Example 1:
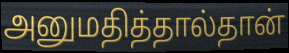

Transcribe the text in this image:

அனுமதித்தால்தான்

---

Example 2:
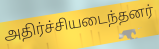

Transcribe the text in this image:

அதிர்ச்சியடைந்தனர்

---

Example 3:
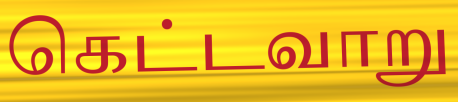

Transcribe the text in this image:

கெட்டவாறு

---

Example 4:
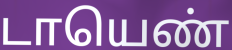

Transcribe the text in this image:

டாயெண்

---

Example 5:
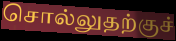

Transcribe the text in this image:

சொல்லுதற்குச்